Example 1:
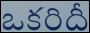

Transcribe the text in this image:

ఒకరిదీ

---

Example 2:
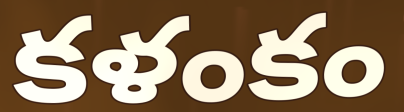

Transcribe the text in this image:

కళంకం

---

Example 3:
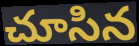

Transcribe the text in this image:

చూసిన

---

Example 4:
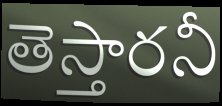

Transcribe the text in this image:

తెస్తారనీ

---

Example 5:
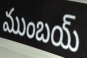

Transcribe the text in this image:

ముంబయ్